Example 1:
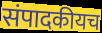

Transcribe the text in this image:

संपादकीयच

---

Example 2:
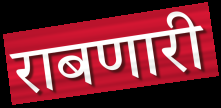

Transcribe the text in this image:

राबणारी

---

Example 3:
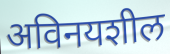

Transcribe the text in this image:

अविनयशील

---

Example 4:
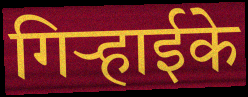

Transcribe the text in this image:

गिर्‍हाईके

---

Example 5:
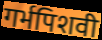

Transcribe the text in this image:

गर्भपिशवी